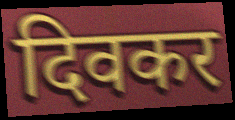
दिवकर